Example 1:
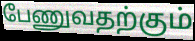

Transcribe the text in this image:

பேணுவதற்கும்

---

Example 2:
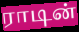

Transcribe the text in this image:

ராடின்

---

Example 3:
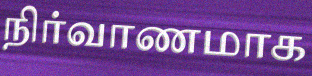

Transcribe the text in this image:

நிர்வாணமாக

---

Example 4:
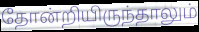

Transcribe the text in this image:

தோன்றியிருந்தாலும்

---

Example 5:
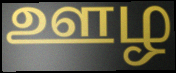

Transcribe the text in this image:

ஊழ